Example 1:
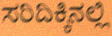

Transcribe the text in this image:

ಸರಿದಿಕ್ಕಿನಲ್ಲಿ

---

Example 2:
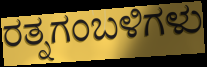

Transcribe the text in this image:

ರತ್ನಗಂಬಳಿಗಳು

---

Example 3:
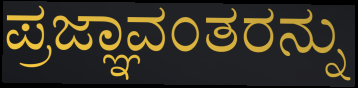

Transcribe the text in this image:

ಪ್ರಜ್ಞಾವಂತರನ್ನು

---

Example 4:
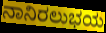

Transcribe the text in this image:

ನಾನಿರಲುಭಯ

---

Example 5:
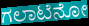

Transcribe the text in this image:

ಗಲಾಟೆನೋ